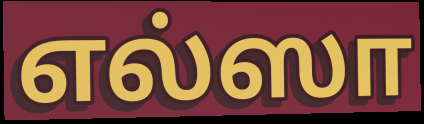
எல்ஸா